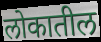
लोकातील